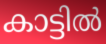
കാട്ടിൽ